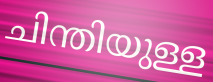
ചിന്തിയുള്ള